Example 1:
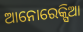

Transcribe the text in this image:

ଆନୋରେକ୍ସିଆ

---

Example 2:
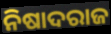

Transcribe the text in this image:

ନିଷାଦରାଜ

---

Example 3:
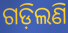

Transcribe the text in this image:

ଗଡ଼ିଲଣି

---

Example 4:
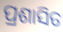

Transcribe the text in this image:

ପ୍ରଶାସିତ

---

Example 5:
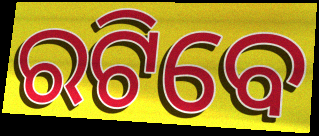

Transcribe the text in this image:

ରଟିବେ